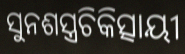
ସୁନଶସ୍ତ୍ରଚିକିତ୍ସାୟୀ